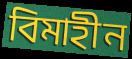
বিমাহীন